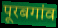
पूरबगांव